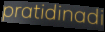
pratidinadi